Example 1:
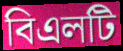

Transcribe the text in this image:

বিএলটি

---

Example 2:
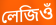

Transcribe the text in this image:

লেজিওঁ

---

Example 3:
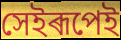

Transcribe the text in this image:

সেইৰূপেই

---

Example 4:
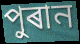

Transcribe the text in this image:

পুৰান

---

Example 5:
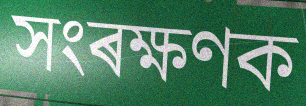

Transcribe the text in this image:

সংৰক্ষণক